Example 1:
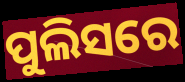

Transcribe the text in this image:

ପୁଲିସରେ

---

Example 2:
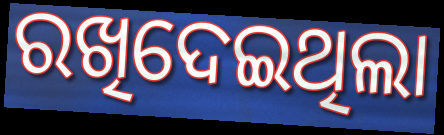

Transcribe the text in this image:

ରଖିଦେଇଥିଲା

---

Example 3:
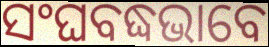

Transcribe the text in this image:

ସଂଘବଦ୍ଧଭାବେ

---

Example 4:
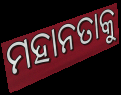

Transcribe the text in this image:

ମହାନତାକୁ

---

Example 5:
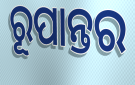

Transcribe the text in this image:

ରୂପାନ୍ତର